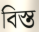
বিস্ত